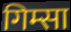
गिम्सा